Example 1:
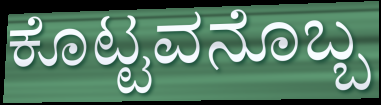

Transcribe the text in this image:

ಕೊಟ್ಟವನೊಬ್ಬ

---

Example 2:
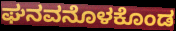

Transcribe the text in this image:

ಘನವನೊಳಕೊಂಡ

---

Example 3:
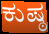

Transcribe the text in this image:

ಕುಷ್ಠ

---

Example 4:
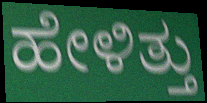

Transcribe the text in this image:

ಹೇಳಿತ್ತು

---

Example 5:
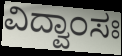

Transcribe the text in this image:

ವಿದ್ವಾಂಸಃ